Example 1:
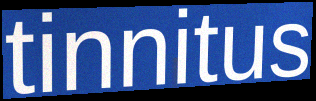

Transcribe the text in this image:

tinnitus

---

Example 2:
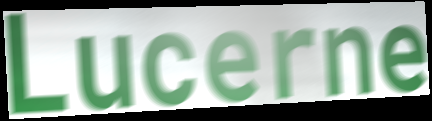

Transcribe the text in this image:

Lucerne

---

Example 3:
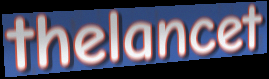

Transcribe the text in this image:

thelancet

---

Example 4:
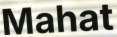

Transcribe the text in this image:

Mahat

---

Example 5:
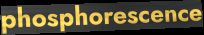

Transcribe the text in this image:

phosphorescence